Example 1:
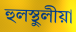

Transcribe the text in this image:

হুলস্থুলীয়া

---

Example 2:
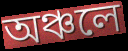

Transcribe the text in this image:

অঞ্চলে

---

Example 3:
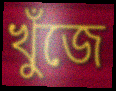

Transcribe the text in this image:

খুঁজে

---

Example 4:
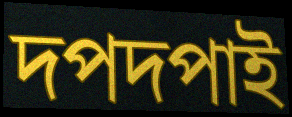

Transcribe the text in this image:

দপদপাই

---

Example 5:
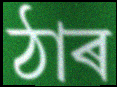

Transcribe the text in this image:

ঠাৰ